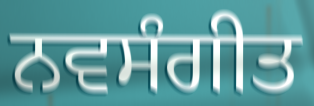
ਨਵਸੰਗੀਤ